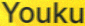
Youku